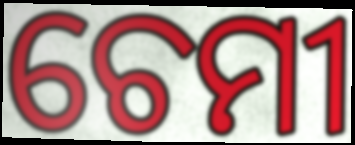
ଚେମୀ